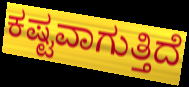
ಕಷ್ಟವಾಗುತ್ತಿದೆ